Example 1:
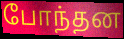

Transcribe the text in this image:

போந்தன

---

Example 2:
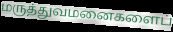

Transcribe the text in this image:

மருத்துவமனைகளைப்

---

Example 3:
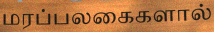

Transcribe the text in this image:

மரப்பலகைகளால்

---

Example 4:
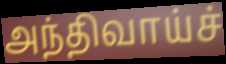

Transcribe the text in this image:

அந்திவாய்ச்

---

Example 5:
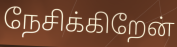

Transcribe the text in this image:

நேசிக்கிறேன்